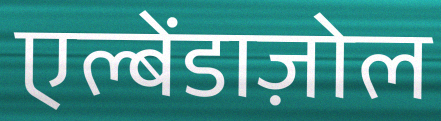
एल्बेंडाज़ोल